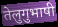
तेलुगुभाषी